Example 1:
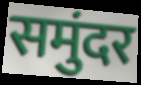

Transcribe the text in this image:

समुंदर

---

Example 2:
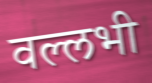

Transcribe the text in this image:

वल्लभी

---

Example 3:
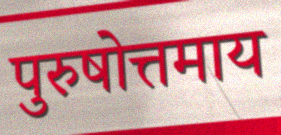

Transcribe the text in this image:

पुरुषोत्तमाय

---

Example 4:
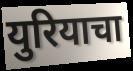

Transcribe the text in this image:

युरियाचा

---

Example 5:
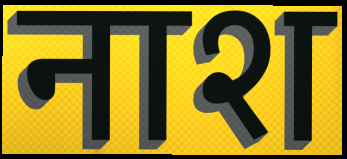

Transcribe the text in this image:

नाश